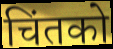
चिंतको